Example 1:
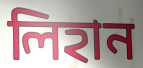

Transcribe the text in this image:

লিহান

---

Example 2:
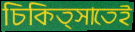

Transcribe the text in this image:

চিকিত্সাতেই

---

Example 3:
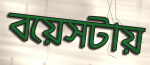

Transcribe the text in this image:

বয়েসটায়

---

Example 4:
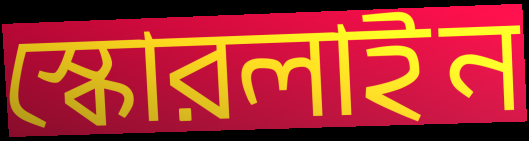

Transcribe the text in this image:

স্কোরলাইন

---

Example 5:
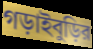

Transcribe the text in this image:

গড়াইবুড়ির